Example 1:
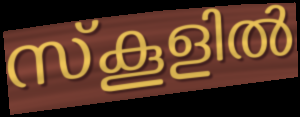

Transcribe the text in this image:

സ്‌കൂളിൽ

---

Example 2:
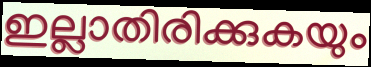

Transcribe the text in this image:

ഇല്ലാതിരിക്കുകയും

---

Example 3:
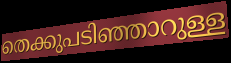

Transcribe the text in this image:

തെക്കുപടിഞ്ഞാറുള്ള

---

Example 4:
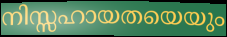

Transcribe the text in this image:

നിസ്സഹായതയെയും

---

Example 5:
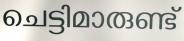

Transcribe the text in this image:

ചെട്ടിമാരുണ്ട്